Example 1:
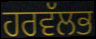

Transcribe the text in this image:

ਹਰਵੱਲਭ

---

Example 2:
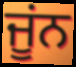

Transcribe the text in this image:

ਜੂਂਨ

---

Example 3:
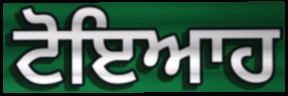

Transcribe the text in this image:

ਟੋਇਆਹ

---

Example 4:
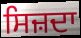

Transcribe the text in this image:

ਸਿਜ਼ਦਾ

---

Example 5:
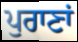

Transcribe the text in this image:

ਪੁਰਾਣਾਂ